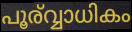
പൂര്വ്വാധികം